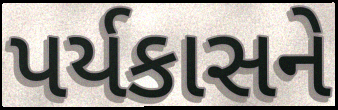
પર્યકાસને